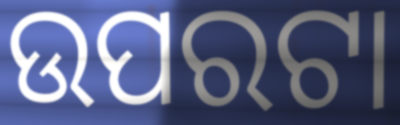
ଉପରଟା